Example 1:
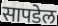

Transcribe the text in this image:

सापडेल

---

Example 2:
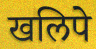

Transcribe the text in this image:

खलिपे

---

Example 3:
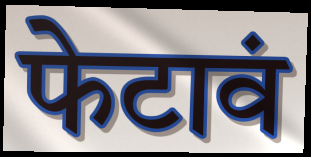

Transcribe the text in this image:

फेटावं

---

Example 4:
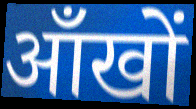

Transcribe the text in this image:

आँखों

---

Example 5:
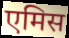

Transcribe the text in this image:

एमिस